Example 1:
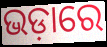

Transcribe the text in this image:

ଭଡ଼ାରେ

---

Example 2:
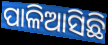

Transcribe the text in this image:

ପାଳିଆସିଛି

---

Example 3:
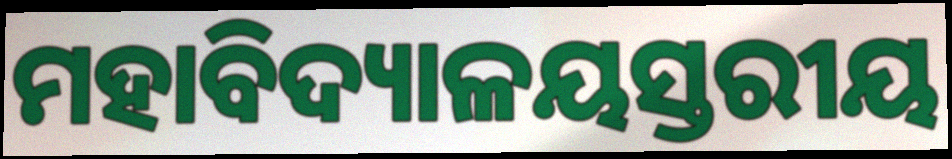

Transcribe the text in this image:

ମହାବିଦ୍ୟାଳୟସ୍ତରୀୟ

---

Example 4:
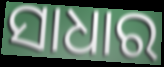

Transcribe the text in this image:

ସାଧାର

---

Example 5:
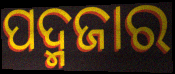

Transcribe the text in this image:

ପଦ୍ମଜାର